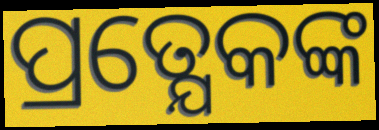
ପ୍ରତ୍ଯେକଙ୍କ